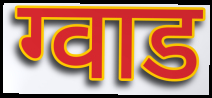
ग्वाड